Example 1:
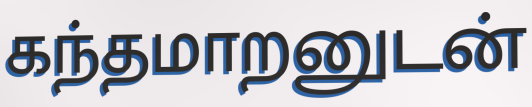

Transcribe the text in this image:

கந்தமாறனுடன்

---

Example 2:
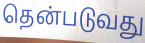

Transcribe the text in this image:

தென்படுவது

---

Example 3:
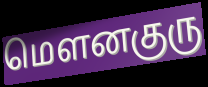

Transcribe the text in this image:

மௌனகுரு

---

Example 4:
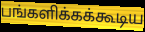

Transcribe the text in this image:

பங்களிக்கக்கூடிய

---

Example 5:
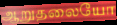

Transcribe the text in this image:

ஆறுதலையோ